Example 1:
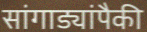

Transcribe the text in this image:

सांगाड्यांपैकी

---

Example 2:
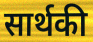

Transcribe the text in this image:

सार्थकी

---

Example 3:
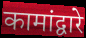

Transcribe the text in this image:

कामांद्वारे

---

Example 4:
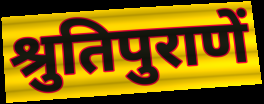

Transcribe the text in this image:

श्रुतिपुराणें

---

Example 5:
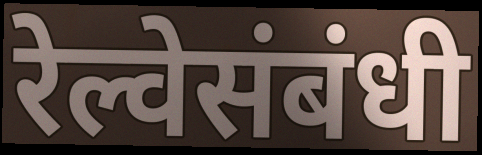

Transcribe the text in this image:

रेल्वेसंबंधी